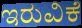
ಇರುವಿಕೆ